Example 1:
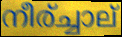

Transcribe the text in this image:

നീര്ച്ചാല്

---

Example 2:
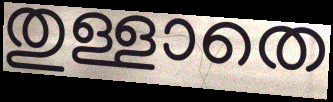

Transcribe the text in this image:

തുള്ളാതെ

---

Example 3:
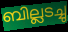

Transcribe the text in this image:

ബില്ലടച്ചു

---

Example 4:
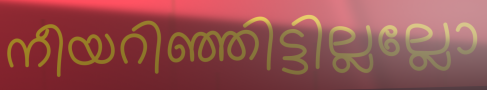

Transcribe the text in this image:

നീയറിഞ്ഞിട്ടില്ലല്ലോ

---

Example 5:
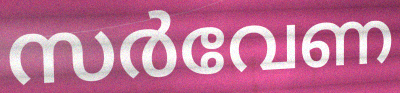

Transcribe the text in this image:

സർവേണ